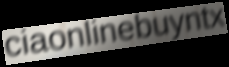
ciaonlinebuyntx